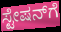
ಸ್ಟೇಷನ್‍ಗೆ